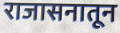
राजासनातून